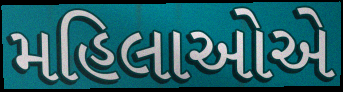
મહિલાઓએ